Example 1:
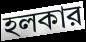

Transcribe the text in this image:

হলকার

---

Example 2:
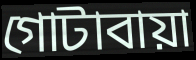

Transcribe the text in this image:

গোটাবায়া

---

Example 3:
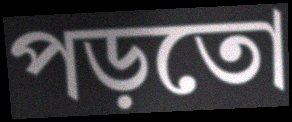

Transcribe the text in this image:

পড়তো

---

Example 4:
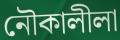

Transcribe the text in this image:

নৌকালীলা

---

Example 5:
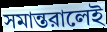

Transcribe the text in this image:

সমান্তরালেই